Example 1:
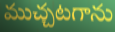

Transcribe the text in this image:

ముచ్చటగాను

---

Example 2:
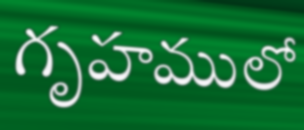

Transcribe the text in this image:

గృహములో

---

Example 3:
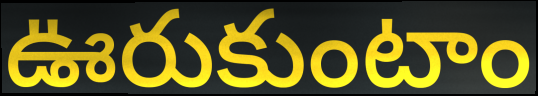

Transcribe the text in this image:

ఊరుకుంటాం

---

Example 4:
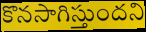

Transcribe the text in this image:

కొనసాగిస్తుందని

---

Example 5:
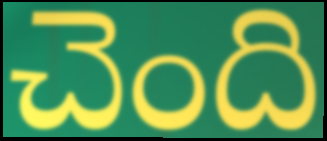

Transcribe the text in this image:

చెంది